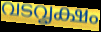
വടവൃക്ഷം